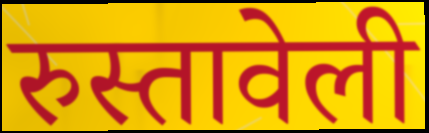
रुस्तावेली